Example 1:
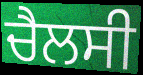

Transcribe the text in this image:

ਚੈਲਸੀ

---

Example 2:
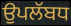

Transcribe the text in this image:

ਉਪਲੱਬਧ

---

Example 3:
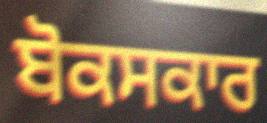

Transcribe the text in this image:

ਬੋਕਸਕਾਰ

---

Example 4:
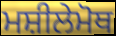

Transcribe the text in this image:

ਮਸ਼ੀਲੇਮੋਥ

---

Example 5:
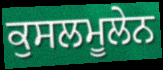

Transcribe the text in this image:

ਕੁਸਲਮੂਲੇਨ